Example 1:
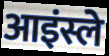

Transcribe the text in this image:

आइंस्ले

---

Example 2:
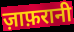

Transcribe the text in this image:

ज़ाफ़रानी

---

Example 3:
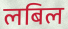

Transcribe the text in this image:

लबिल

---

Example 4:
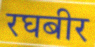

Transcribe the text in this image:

रघबीर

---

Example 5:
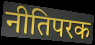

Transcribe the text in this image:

नीतिपरक